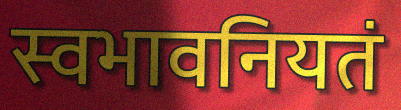
स्वभावनियतं